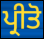
ਪ੍ਰੀਤੋ